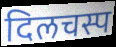
दिलचस्प